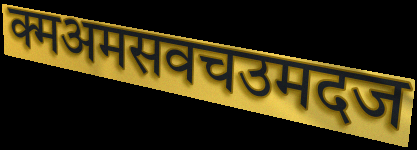
क्मअमसवचउमदज